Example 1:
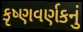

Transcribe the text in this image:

કૃષ્ણવર્ણકનું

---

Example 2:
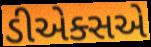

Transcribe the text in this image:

ડીએક્સએ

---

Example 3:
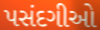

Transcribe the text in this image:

પસંદગીઓ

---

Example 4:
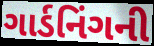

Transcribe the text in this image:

ગાર્ડનિંગની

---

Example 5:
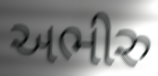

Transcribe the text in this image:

અભીરુ